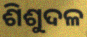
ଶିଶୁଦଳ